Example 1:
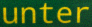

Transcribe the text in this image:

unter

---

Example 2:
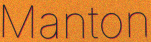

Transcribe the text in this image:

Manton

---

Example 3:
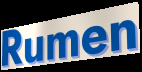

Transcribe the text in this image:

Rumen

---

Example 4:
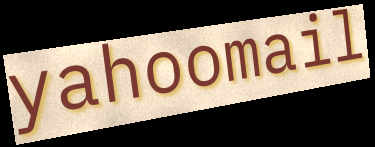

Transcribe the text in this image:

yahoomail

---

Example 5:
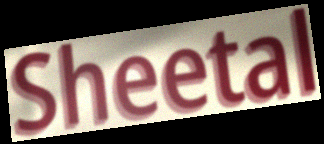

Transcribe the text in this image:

Sheetal